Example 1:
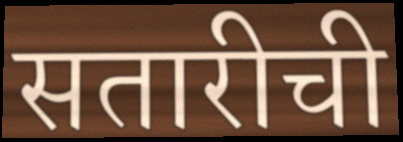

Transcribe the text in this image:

सतारीची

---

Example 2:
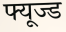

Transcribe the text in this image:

फ्यूज्ड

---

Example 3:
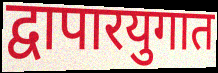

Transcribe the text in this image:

द्वापारयुगात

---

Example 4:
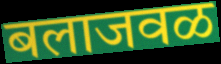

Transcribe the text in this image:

बलाजवळ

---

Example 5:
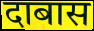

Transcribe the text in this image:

दाबास